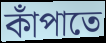
কাঁপাতে